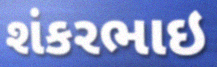
શંકરભાઇ